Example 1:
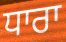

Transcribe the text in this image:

ਧਾਰਾ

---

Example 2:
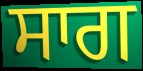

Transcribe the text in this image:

ਸਾਗ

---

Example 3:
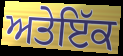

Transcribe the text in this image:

ਅਤੇਇੱਕ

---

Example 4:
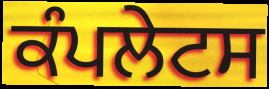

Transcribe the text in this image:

ਕੰਪਲੇਟਸ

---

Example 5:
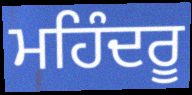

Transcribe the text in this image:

ਮਹਿੰਦਰੂ